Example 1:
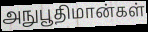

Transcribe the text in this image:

அநுபூதிமான்கள்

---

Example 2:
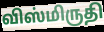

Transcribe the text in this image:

விஸ்மிருதி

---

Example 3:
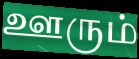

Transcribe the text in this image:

ஊரும்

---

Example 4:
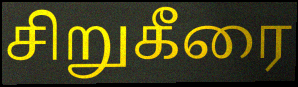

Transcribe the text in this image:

சிறுகீரை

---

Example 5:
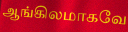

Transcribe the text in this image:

ஆங்கிலமாகவே